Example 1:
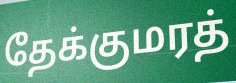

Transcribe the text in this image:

தேக்குமரத்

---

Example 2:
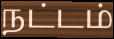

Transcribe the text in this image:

நட்டம்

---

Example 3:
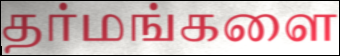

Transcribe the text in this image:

தர்மங்களை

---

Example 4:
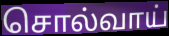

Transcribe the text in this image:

சொல்வாய்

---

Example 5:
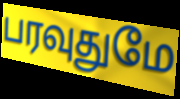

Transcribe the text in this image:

பரவுதுமே